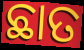
ଛାତ